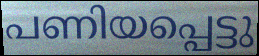
പണിയപ്പെട്ടു